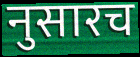
नुसारच